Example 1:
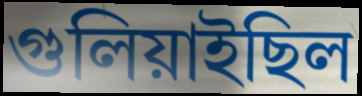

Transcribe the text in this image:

গুলিয়াইছিল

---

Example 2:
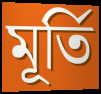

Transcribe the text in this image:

মূৰ্তি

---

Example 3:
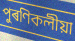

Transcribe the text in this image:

পুৰণিকলীয়া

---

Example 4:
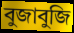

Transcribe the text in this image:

বুজাবুজি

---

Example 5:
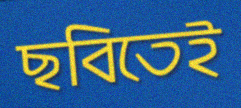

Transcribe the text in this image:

ছবিতেই